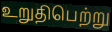
உறுதிபெற்று